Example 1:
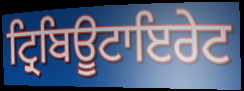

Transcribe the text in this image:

ਟ੍ਰਿਬਿਊਟਾਇਰੇਟ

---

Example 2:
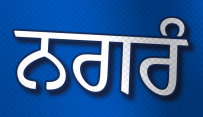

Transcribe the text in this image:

ਨਗਰੰ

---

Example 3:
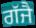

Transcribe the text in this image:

ਗੱਜੈ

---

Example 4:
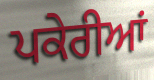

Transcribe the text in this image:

ਪਕੇਰੀਆਂ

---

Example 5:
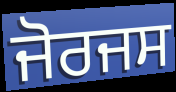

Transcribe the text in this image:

ਜੋਰਜਸ